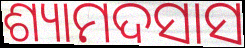
ଶ୍ୟାମଦସାସ